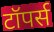
टॉपर्स